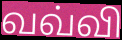
வவ்வி